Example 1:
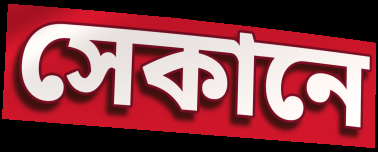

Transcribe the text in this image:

সেকানে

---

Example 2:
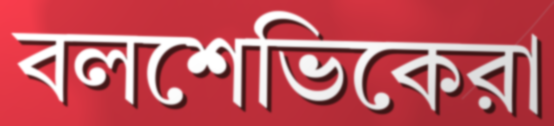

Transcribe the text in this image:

বলশেভিকেরা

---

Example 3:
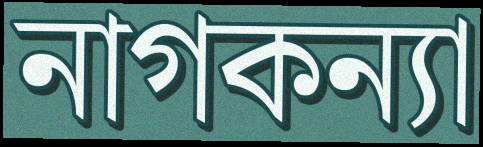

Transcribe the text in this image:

নাগকন্যা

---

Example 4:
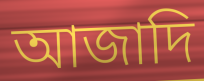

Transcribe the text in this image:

আজাদি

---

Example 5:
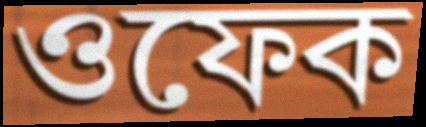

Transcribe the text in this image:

ওফেক